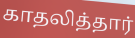
காதலித்தார்